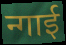
न्गाई